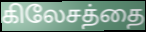
கிலேசத்தை